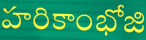
హరికాంభోజి